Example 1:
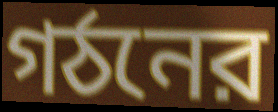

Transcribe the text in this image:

গঠনের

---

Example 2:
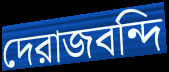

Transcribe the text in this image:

দেরাজবন্দি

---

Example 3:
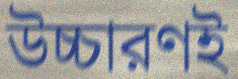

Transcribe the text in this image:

উচ্চারণই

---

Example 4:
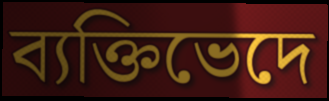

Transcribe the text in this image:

ব্যক্তিভেদে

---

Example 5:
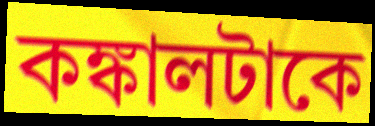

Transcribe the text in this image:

কঙ্কালটাকে